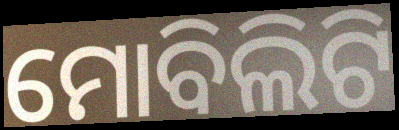
ମୋବିଲିଟି